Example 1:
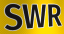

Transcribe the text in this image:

SWR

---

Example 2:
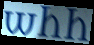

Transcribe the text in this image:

whh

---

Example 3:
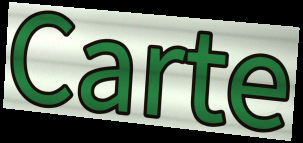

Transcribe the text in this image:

Carte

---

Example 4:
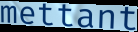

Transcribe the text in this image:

mettant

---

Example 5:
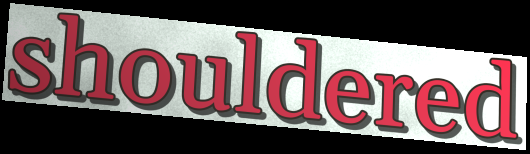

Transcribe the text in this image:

shouldered